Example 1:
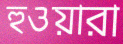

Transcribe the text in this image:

হুওয়ারা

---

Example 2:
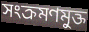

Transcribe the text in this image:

সংক্রমণমুক্ত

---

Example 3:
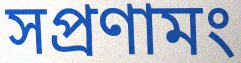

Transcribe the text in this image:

সপ্রণামং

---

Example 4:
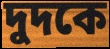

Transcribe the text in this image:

দুদকে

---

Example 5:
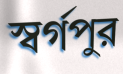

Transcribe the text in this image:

স্বর্গপুর